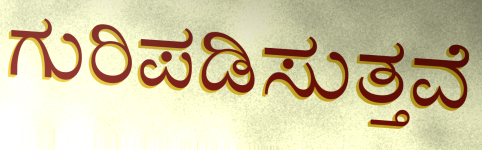
ಗುರಿಪಡಿಸುತ್ತವೆ